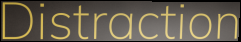
Distraction